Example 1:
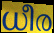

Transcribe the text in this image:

ധീര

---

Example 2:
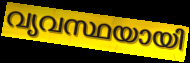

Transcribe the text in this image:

വ്യവസ്ഥയായി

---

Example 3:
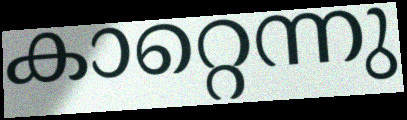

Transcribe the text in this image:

കാറ്റെന്നു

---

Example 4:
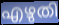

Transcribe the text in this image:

എഴുതി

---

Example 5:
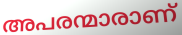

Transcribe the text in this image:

അപരന്മാരാണ്